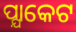
ପ୍ଯାକେଟ